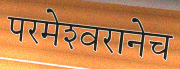
परमेश्वरानेच